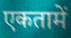
एकतामें